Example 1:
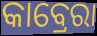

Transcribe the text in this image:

କାବ୍ରେରା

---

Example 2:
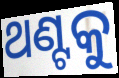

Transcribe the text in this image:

ଥଣ୍ଟକୁ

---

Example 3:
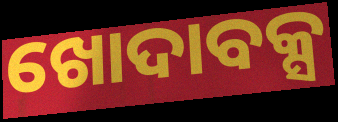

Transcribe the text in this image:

ଖୋଦାବକ୍ସ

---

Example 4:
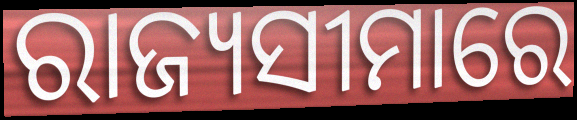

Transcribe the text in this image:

ରାଜ୍ୟସୀମାରେ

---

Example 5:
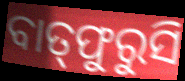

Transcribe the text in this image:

ବାତ୍‌ଫୁରୁସି